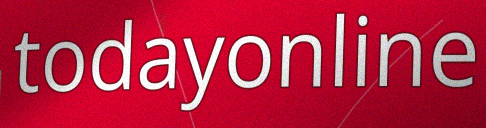
todayonline